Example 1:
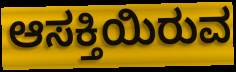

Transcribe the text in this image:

ಆಸಕ್ತಿಯಿರುವ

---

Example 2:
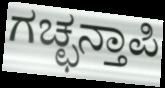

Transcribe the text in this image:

ಗಚ್ಛನ್ತಾಪಿ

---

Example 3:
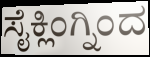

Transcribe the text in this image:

ಸೈಕ್ಲಿಂಗ್ನಿಂದ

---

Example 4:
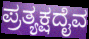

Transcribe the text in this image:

ಪ್ರತ್ಯಕ್ಷದೈವ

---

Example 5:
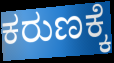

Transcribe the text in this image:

ಕರುಣಕ್ಕೆ